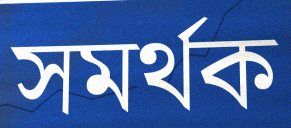
সমৰ্থক